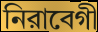
নিরাবেগী